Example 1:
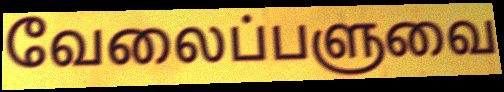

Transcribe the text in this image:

வேலைப்பளுவை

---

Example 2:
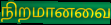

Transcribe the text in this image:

நிறமானவை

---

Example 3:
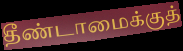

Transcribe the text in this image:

தீண்டாமைக்குத்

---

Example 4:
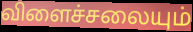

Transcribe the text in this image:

விளைச்சலையும்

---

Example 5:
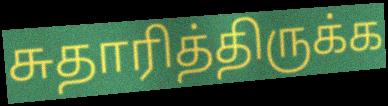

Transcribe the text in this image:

சுதாரித்திருக்க